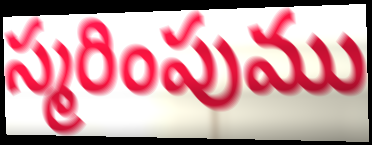
స్మరింపుము